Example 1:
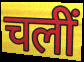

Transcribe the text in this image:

चलीं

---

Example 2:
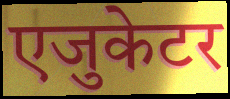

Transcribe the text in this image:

एजुकेटर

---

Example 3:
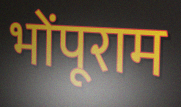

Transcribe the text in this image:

भोंपूराम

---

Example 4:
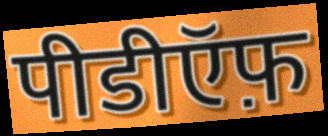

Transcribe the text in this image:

पीडीऍफ़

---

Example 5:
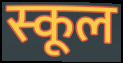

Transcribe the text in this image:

स्कूल